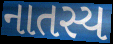
નાતસ્ય